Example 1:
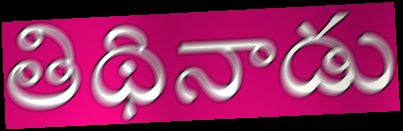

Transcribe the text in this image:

తిథినాడు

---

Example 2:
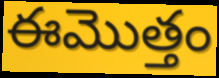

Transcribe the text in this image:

ఈమొత్తం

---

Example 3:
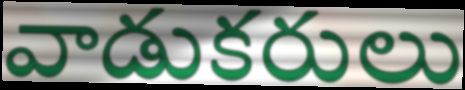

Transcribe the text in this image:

వాడుకరులు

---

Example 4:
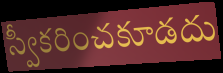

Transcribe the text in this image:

స్వీకరించకూడదు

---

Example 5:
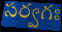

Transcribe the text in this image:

సర్వగః